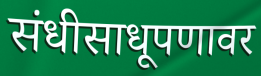
संधीसाधूपणावर